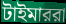
টাইমাররা